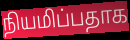
நியமிப்பதாக